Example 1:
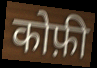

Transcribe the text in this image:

कोफ़ी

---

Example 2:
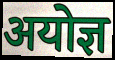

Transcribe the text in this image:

अयोज्ञ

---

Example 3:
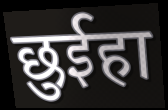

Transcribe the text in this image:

छुईहा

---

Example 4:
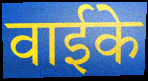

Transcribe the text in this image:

वाईके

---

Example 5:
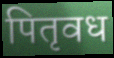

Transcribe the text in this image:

पितृवध